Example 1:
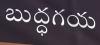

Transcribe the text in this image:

బుద్ధగయ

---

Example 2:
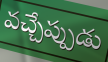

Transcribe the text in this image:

వచ్చేప్పుడు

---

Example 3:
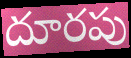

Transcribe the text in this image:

దూరపు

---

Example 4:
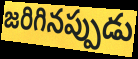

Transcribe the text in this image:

జరిగినప్పుడు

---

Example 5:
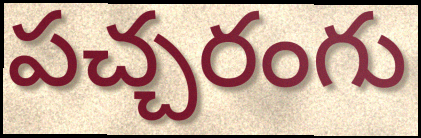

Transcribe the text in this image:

పచ్చరంగు